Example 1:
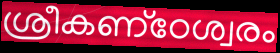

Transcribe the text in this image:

ശ്രീകണ്‌ഠേശ്വരം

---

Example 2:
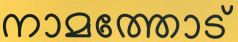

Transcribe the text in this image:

നാമത്തോട്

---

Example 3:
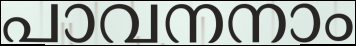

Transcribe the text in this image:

പാവനനാം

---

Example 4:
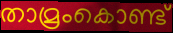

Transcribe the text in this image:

താമ്രംകൊണ്ട്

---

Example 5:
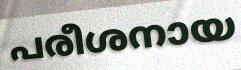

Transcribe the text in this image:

പരീശനായ